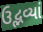
ઉદ્ભવ્યાં